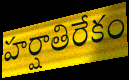
హర్షాతిరేకం